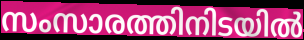
സംസാരത്തിനിടയിൽ